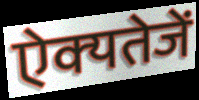
ऐक्यतेजें